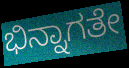
ಭಿನ್ನಾಗತೇ